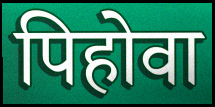
पिहोवा